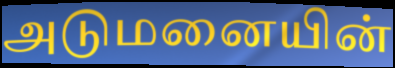
அடுமனையின்